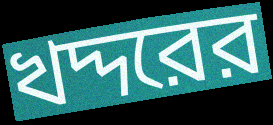
খদ্দরের